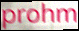
prohm